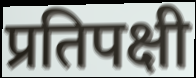
प्रतिपक्षी